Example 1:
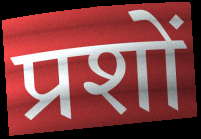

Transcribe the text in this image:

प्रशों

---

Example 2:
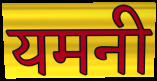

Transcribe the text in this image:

यमनी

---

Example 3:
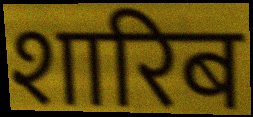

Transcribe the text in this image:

शारिब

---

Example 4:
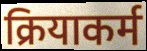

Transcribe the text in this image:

क्रियाकर्म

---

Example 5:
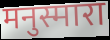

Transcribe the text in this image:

मनुस्मारा